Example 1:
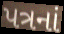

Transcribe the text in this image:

પત્રનાં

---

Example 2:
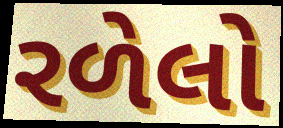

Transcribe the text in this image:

રળેલો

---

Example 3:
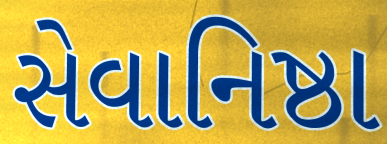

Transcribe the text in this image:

સેવાનિષ્ઠા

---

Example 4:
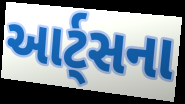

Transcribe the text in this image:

આર્ટ્સના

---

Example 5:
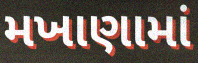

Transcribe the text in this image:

મખાણામાં